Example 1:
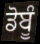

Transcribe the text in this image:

ਡੋਬੂੰ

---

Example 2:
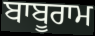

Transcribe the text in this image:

ਬਾਬੂਰਾਮ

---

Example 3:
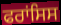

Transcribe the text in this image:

ਫਰਾਂਸਿਸ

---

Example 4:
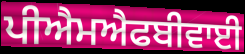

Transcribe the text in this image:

ਪੀਐਮਐਫਬੀਵਾਈ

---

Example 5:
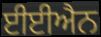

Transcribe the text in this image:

ਈਈਐਨ